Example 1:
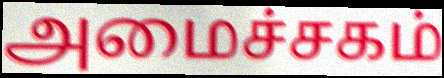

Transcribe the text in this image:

அமைச்சகம்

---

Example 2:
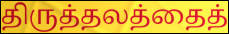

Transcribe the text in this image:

திருத்தலத்தைத்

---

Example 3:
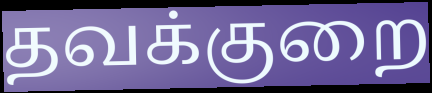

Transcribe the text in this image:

தவக்குறை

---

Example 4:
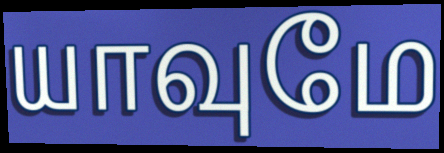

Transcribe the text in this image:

யாவுமே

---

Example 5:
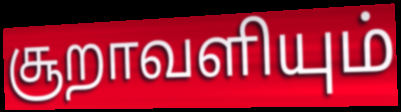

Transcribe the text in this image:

சூறாவளியும்